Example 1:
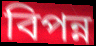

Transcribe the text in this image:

বিপন্ন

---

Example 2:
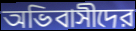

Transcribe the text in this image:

অভিবাসীদের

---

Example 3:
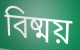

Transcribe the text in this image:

বিষ্ময়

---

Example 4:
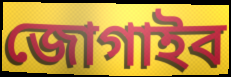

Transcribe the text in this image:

জোগাইব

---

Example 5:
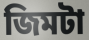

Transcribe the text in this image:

জিমটা